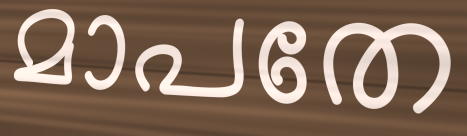
മാപതേ